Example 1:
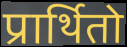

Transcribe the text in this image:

प्रार्थितो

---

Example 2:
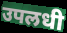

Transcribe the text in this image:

उपलधी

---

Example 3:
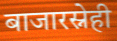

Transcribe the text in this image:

बाजारस्नेही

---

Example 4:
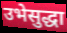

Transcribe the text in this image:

उभेसुद्धा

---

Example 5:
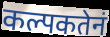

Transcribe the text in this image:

कल्पकतेनं